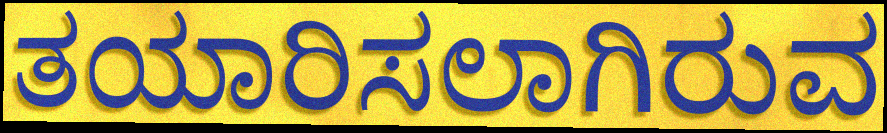
ತಯಾರಿಸಲಾಗಿರುವ